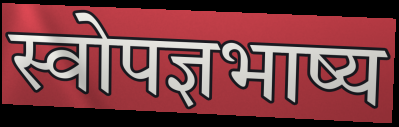
स्वोपज्ञभाष्य